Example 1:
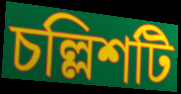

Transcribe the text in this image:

চল্লিশটি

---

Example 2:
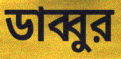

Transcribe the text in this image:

ডাব্বুর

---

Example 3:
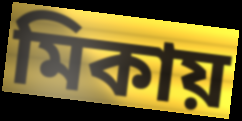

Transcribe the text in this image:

মিকায়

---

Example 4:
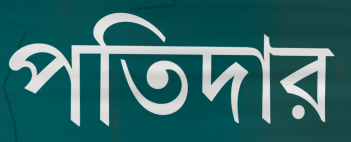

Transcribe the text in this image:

পতিদার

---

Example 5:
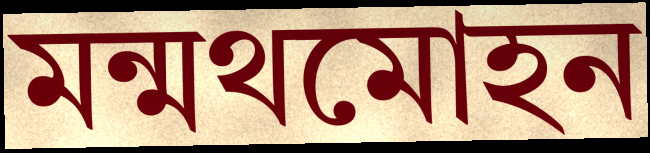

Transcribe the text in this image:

মন্মথমোহন